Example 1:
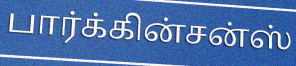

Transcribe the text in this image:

பார்க்கின்சன்ஸ்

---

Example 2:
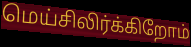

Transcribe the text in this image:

மெய்சிலிர்க்கிறோம்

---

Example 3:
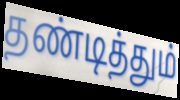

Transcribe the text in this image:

தண்டித்தும்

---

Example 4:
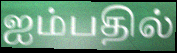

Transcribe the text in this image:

ஐம்பதில்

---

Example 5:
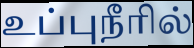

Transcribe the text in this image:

உப்புநீரில்